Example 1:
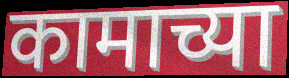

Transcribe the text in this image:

कामाच्या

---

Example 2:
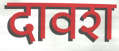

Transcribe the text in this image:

दावश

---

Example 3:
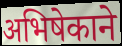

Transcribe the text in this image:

अभिषेकाने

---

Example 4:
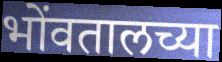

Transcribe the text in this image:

भोंवतालच्या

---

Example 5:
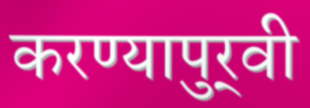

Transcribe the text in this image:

करण्यापुर्वी